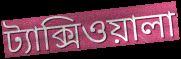
ট্যাক্সিওয়ালা